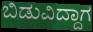
ಬಿಡುವಿದ್ದಾಗ